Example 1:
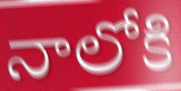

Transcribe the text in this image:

నాలోకి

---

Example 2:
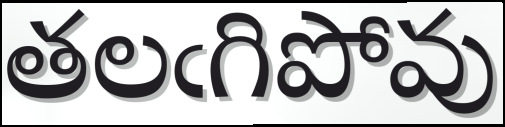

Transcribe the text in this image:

తలఁగిపోవు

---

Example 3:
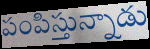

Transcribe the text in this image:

పంపిస్తున్నాడు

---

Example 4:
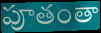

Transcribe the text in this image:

పూతంతా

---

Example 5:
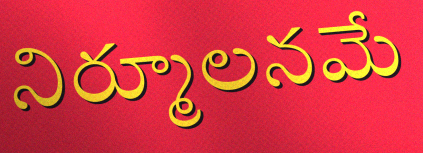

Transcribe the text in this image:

నిర్మూలనమే